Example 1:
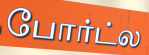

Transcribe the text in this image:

போர்ட்ல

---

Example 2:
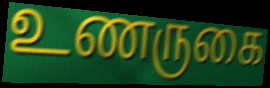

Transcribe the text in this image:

உணருகை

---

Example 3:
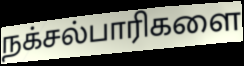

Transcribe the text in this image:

நக்சல்பாரிகளை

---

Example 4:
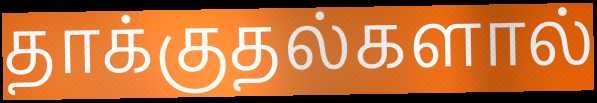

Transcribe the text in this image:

தாக்குதல்களால்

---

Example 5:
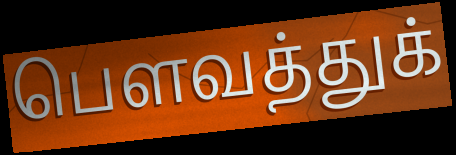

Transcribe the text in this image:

பௌவத்துக்